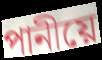
পানীয়ে